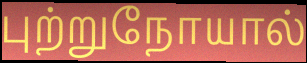
புற்றுநோயால்